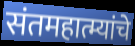
संतमहात्म्यांचे